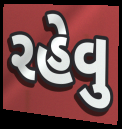
રહેવુ